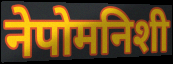
नेपोमनिशी